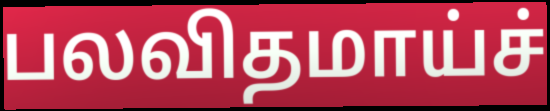
பலவிதமாய்ச்